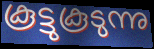
കൂട്ടുകൂടുന്നു